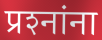
प्रश्नांना